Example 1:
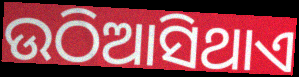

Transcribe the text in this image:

ଉଠିଆସିଥାଏ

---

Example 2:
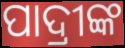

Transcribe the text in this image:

ପାଦ୍ରୀଙ୍କ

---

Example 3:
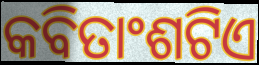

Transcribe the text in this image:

କବିତାଂଶଟିଏ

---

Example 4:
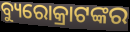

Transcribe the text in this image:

ବ୍ୟୁରୋକ୍ରାଟଙ୍କର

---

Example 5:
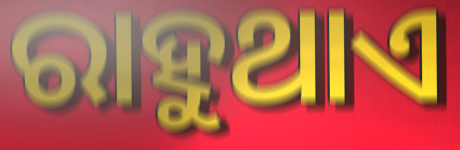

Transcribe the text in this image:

ରାହୁଥାଏ